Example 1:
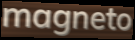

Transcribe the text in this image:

magneto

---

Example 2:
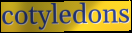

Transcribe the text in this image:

cotyledons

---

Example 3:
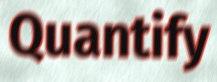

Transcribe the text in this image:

Quantify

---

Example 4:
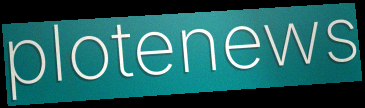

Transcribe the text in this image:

plotenews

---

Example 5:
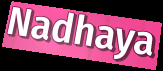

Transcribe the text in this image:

Nadhaya